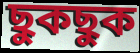
ছুকছুক